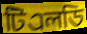
টিএলডি